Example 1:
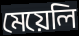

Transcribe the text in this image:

মেয়েলি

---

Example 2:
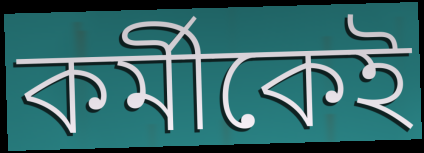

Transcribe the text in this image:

কর্মীকেই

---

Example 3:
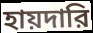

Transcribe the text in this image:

হায়দারি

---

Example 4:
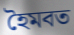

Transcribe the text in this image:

হৈমবত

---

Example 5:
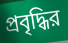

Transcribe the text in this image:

প্রবৃদ্ধির